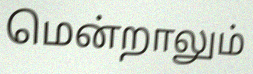
மென்றாலும்